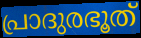
പ്രാദുരഭൂത്